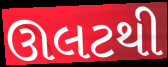
ઊલટથી